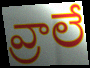
వ్రాలే